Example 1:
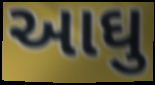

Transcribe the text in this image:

આઘુ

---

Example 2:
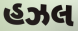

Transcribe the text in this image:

હઝલ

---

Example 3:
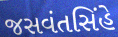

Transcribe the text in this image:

જસવંતસિંહે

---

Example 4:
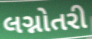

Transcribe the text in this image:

લગ્નોતરી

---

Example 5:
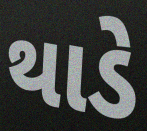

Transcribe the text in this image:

થાડે